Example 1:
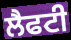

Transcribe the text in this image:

ਲੈਫਟੀ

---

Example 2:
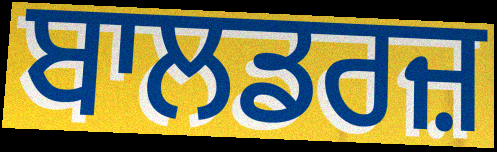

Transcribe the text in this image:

ਬਾਲਡਰਜ਼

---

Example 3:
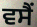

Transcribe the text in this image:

ਵਸੈਂ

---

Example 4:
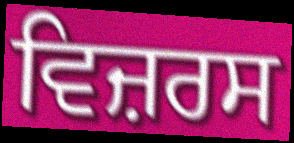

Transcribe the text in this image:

ਵਿਜ਼ਰਸ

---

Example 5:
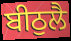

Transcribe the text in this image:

ਬੀਠੁਲੈ